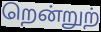
றென்றுற்